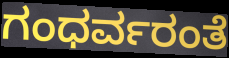
ಗಂಧರ್ವರಂತೆ